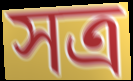
সত্ৰ